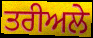
ਤਰੀਅਲੇ